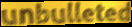
unbulleted